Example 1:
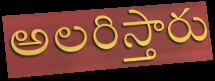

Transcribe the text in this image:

అలరిస్తారు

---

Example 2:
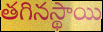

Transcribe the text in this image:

తగినస్థాయి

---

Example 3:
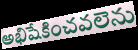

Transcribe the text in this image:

అభిషేకించవలెను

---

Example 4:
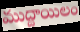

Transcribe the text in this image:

ముద్దాయిలం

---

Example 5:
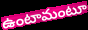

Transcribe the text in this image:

ఉంటామంటూ